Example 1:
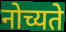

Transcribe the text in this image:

नोच्यते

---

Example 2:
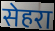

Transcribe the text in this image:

सेहरा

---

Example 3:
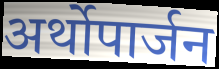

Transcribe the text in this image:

अर्थोपार्जन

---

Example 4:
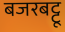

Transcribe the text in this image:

बजरबट्टू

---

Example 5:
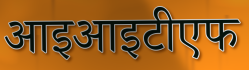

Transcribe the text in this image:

आइआइटीएफ